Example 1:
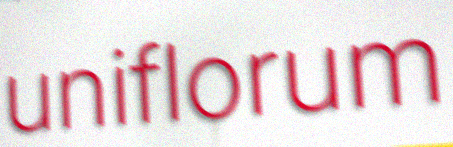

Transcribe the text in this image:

uniflorum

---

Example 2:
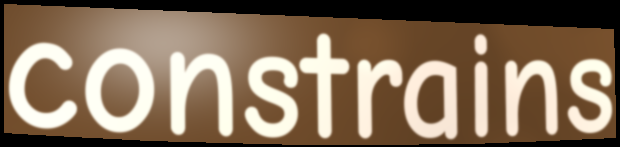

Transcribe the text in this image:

constrains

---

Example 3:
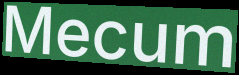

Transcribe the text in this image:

Mecum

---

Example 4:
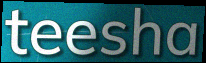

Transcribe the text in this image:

teesha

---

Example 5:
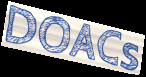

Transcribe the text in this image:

DOACs